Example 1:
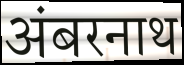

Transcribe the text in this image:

अंबरनाथ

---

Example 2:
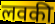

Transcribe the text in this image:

लवकी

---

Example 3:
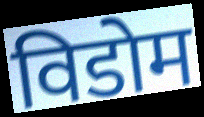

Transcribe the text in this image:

विडोम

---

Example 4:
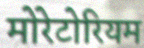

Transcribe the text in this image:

मोरेटोरियम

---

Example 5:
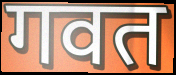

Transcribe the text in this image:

गवत